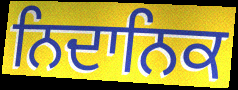
ਨਿਦਾਨਿਕ